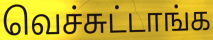
வெச்சுட்டாங்க